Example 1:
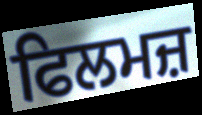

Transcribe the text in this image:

ਫਿਲਮਜ਼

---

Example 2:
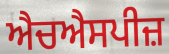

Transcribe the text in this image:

ਐਚਐਸਪੀਜ਼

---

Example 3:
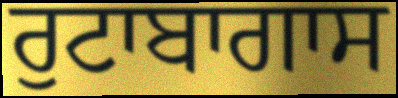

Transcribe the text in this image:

ਰੁਟਾਬਾਗਾਸ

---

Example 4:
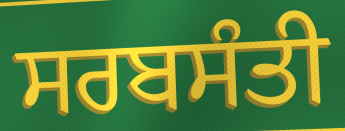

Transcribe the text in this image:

ਸਰਬਸੰਤੀ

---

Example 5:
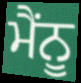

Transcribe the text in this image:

ਮੈਂਨੂ